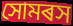
সোমৰস